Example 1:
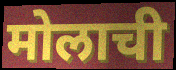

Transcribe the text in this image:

मोलाची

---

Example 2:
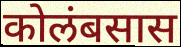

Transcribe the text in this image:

कोलंबसास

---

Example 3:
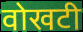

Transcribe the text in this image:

वोखटी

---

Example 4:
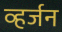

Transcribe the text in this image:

व्हर्जन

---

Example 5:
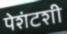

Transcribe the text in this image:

पेशंटशी